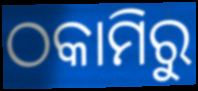
ଠକାମିରୁ